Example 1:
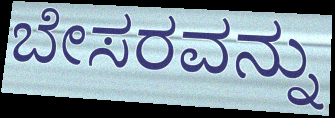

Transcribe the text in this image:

ಬೇಸರವನ್ನು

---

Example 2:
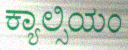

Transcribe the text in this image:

ಕ್ಯಾಲ್ಸಿಯಂ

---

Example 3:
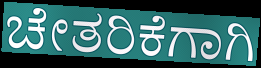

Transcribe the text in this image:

ಚೇತರಿಕೆಗಾಗಿ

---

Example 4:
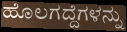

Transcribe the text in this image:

ಹೊಲಗದ್ದೆಗಳನ್ನು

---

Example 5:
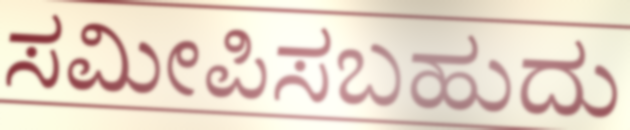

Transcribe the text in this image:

ಸಮೀಪಿಸಬಹುದು